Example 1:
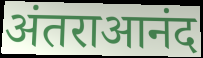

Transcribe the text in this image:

अंतराआनंद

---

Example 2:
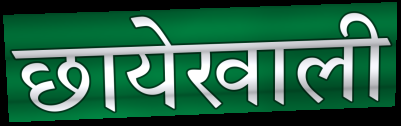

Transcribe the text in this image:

छायेखाली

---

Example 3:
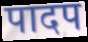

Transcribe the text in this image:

पादप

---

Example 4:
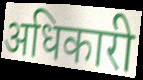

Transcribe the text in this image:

अधिकारी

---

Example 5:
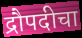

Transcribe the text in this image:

द्रौपदीचा